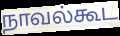
நாவல்கூட